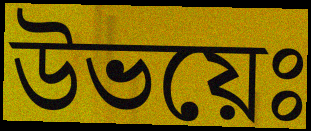
উভয়েঃ